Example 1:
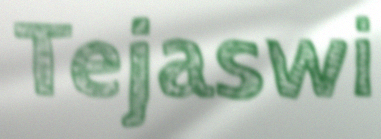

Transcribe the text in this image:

Tejaswi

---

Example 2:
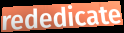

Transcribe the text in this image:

rededicate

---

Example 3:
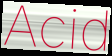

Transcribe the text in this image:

Acid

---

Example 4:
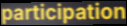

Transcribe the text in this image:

participation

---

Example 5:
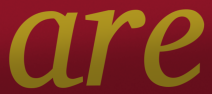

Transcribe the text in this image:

are